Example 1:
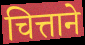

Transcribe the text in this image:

चित्ताने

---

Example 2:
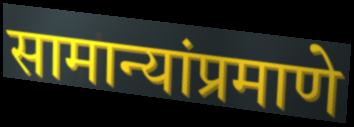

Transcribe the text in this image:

सामान्यांप्रमाणे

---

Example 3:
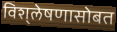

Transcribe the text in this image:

विश्लेषणासोबत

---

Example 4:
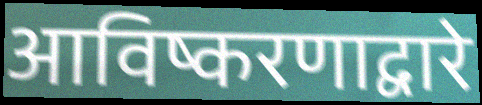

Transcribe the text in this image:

आविष्करणाद्वारे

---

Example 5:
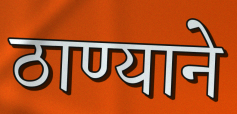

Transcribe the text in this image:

ठाण्याने